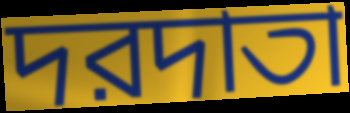
দরদাতা